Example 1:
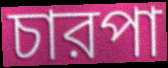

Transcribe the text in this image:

চারপা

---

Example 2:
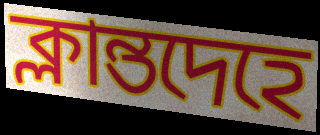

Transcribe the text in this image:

ক্লান্তদেহে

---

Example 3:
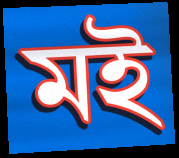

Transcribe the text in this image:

মই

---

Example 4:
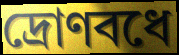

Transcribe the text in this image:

দ্রোণবধে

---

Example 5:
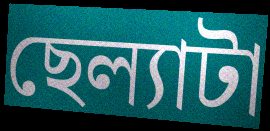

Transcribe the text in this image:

ছেল্যাটা